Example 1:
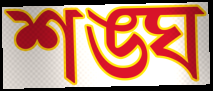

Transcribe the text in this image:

শঙ্ঘ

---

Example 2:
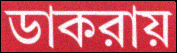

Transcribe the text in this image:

ডাকরায়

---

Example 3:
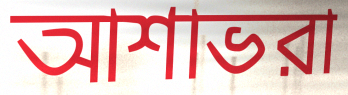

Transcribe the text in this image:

আশাভরা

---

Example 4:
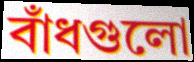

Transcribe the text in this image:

বাঁধগুলো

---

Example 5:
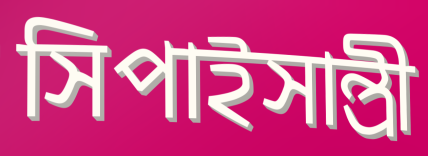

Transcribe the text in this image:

সিপাইসান্ত্রী